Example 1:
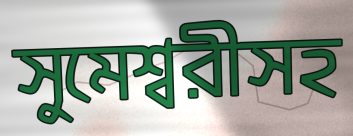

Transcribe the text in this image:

সুমেশ্বরীসহ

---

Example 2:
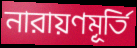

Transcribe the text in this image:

নারায়ণমূর্তি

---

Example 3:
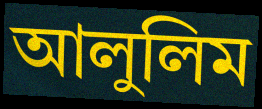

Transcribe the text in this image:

আলুলিম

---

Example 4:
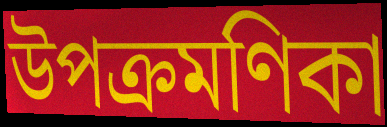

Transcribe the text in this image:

উপক্রমণিকা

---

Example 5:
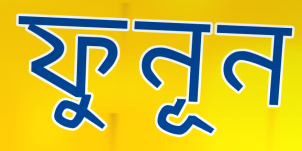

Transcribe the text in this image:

ফুনূন